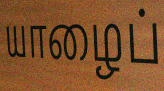
யாழைப்